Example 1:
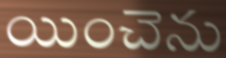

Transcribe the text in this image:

యించెను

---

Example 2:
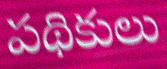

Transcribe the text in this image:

పథికులు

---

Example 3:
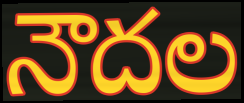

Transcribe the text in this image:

నౌదల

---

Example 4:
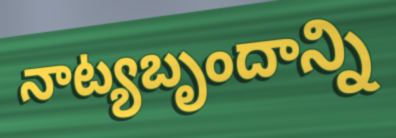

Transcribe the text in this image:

నాట్యబృందాన్ని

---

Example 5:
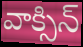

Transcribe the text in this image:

వాక్సిన్